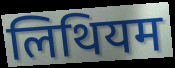
लिथियम